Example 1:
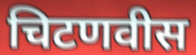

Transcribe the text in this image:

चिटणवीस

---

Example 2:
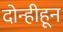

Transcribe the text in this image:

दोन्हीहून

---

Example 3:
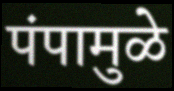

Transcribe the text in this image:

पंपामुळे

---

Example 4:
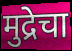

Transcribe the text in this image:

मुद्रेचा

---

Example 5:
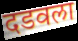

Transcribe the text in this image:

दडवला